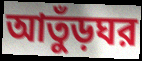
আতুঁড়ঘর